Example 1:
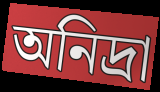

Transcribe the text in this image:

অনিদ্রা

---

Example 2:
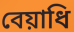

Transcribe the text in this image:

বেয়াধি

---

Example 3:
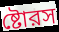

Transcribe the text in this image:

ষ্টোরস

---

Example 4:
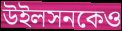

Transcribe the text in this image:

উইলসনকেও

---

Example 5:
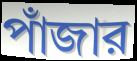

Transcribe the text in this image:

পাঁজার